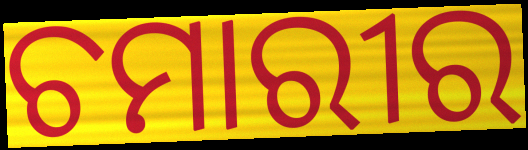
ଚମାରୀର